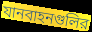
যানবাহনগুলির